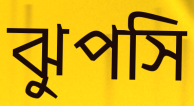
ঝুপসি